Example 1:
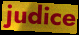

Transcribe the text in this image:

judice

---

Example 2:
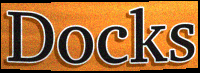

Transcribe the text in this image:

Docks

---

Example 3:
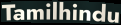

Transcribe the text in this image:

Tamilhindu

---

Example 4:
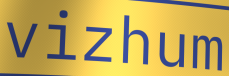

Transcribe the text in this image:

vizhum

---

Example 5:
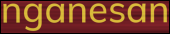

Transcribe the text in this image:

nganesan